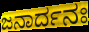
ಜನಾರ್ದನಃ